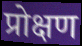
प्रोक्षण